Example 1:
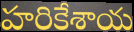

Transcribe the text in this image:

హరికేశాయ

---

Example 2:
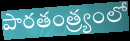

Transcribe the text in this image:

పారతంత్ర్యంలో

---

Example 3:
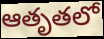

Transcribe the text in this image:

ఆతృతలో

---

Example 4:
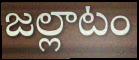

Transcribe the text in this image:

జల్లాటం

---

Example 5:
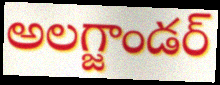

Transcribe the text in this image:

అలగ్జాండర్